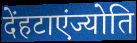
देंहटाएंज्योति